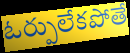
ఓర్పులేకపోతే